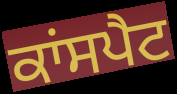
ਕਾਂਸਪੈਟ